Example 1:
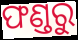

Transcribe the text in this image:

ଫଣ୍ଡରୁ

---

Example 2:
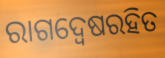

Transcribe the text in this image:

ରାଗଦ୍ୱେଷରହିତ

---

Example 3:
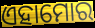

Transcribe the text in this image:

ଏହାମୋର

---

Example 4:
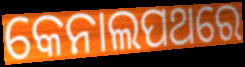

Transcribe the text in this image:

କେନାଲପଥରେ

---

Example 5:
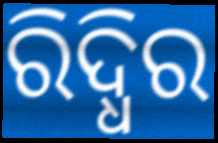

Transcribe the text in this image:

ରିଦ୍ଧିର